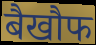
बैखौफ